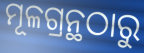
ମୂଳଗ୍ରନ୍ଥଠାରୁ